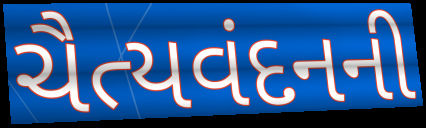
ચૈત્યવંદનની